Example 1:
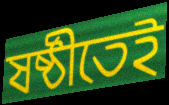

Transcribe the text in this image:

ষষ্ঠীতেই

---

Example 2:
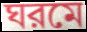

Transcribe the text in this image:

ঘরমে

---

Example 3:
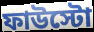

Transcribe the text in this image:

ফাউস্টো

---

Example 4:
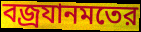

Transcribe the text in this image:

বজ্রযানমতের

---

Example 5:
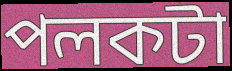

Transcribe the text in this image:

পলকটা